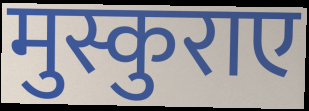
मुस्कुराए